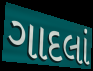
ગાદલાં